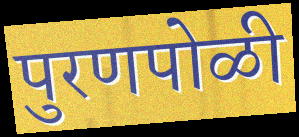
पुरणपोळी